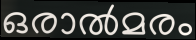
ഒരാൽമരം